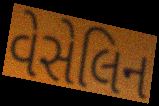
વેસેલિન